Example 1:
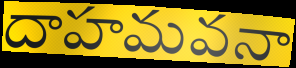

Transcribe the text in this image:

దాహమవనా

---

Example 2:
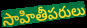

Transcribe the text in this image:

సాహితీపరులు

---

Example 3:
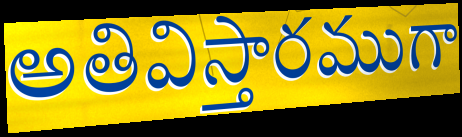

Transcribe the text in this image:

అతివిస్తారముగా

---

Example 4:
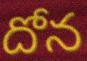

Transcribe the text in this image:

దోన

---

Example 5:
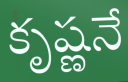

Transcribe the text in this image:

కృష్ణనే